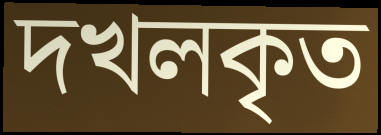
দখলকৃত